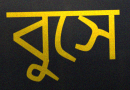
বুসে